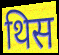
थिस